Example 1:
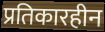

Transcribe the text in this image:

प्रतिकारहीन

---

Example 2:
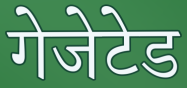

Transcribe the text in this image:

गेजेटेड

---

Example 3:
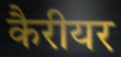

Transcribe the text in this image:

कैरीयर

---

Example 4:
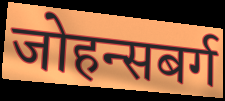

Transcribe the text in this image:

जोहन्सबर्ग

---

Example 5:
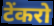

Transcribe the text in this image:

टेंकरो